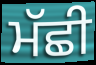
ਮੱਛੀ